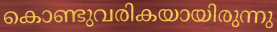
കൊണ്ടുവരികയായിരുന്നു